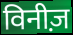
विनीज़